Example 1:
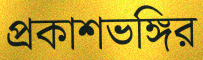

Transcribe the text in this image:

প্রকাশভঙ্গির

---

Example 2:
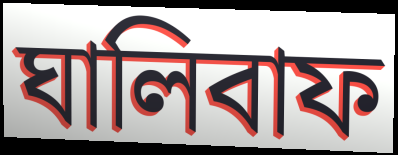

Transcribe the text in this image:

ঘালিবাফ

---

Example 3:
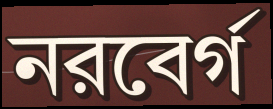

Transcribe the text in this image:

নরবের্গ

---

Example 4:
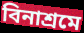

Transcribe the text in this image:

বিনাশ্রমে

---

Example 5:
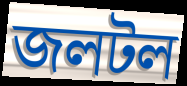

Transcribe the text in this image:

জলটল